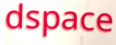
dspace